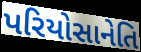
પરિયોસાનેતિ